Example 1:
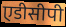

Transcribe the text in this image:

एडीसीपी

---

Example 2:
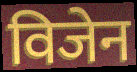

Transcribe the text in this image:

विजेन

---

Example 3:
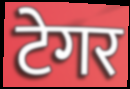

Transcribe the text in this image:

टेगर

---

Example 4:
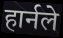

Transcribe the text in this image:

हार्नले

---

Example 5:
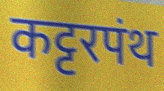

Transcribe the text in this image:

कट्टरपंथ